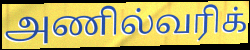
அணில்வரிக்